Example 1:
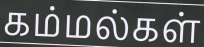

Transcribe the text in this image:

கம்மல்கள்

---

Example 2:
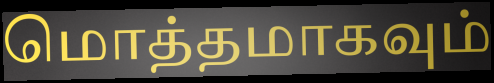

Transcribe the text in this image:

மொத்தமாகவும்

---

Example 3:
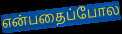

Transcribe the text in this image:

என்பதைப்போல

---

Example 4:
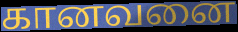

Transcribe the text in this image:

கானவனை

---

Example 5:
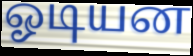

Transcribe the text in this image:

ஓடியன